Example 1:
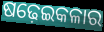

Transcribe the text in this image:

ଷଢ଼େଇକଳାର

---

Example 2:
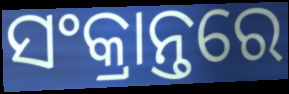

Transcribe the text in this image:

ସଂକ୍ରାନ୍ତରେ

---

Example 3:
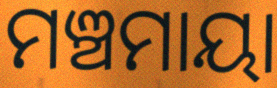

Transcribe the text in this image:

ମଞ୍ଚମାୟା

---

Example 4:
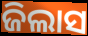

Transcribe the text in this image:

ଜିଲାସ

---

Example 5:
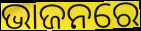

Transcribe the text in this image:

ଭାଜନରେ